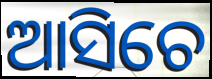
ଆସିଚେ